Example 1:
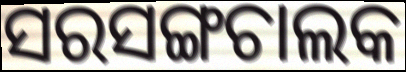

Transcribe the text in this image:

ସରସଙ୍ଗଚାଲକ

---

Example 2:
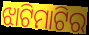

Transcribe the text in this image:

ଝାଟିମାଟିର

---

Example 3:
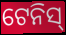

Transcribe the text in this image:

ଟେନିସ୍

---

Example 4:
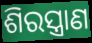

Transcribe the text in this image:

ଶିରସ୍ତ୍ରାଣ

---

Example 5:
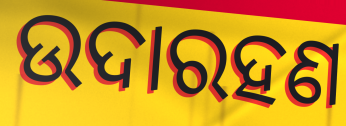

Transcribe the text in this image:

ଉଦାରହଣ